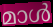
മാൾ